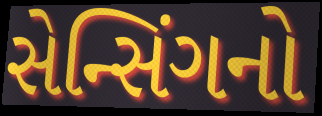
સેન્સિંગનો